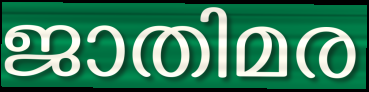
ജാതിമര